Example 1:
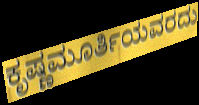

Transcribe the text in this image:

ಕೃಷ್ಣಮೂರ್ತಿಯವರದು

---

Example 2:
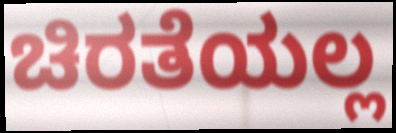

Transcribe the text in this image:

ಚಿರತೆಯಲ್ಲ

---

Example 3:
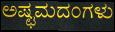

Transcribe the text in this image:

ಅಷ್ಟಮದಂಗಳು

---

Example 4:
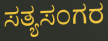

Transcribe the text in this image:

ಸತ್ಯಸಂಗರ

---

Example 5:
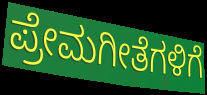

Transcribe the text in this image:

ಪ್ರೇಮಗೀತೆಗಳಿಗೆ